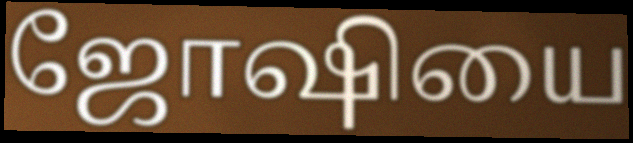
ஜோஷியை